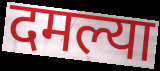
दमल्या